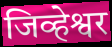
जिव्हेश्वर